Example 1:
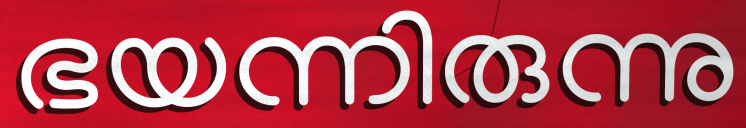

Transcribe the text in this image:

ഭയന്നിരുന്നു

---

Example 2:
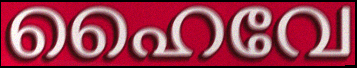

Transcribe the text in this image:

ഹൈവേ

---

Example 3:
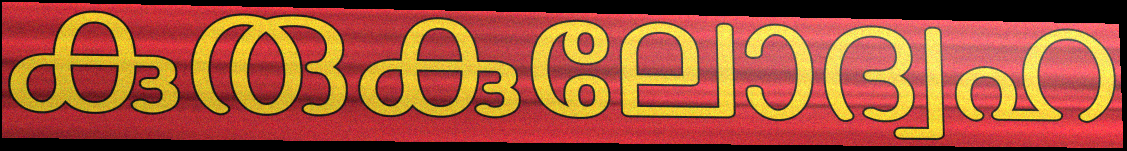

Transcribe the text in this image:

കുരുകുലോദ്വഹ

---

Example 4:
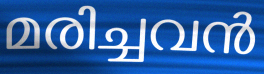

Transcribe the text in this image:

മരിച്ചവൻ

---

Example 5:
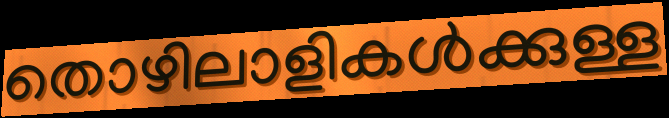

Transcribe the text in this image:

തൊഴിലാളികൾക്കുള്ള